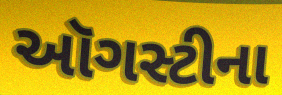
ઑગસ્ટીના